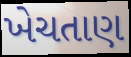
ખેચતાણ